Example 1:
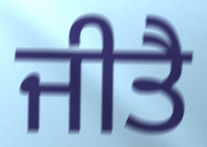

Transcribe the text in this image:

ਜੀਤੈ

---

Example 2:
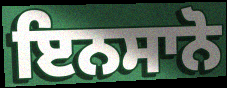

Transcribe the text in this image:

ਇਨਸਾਨੋ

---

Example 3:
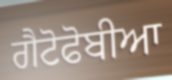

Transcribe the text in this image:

ਗੈਟੋਫੋਬੀਆ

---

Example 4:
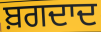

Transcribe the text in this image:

ਬ਼ਗਦਾਦ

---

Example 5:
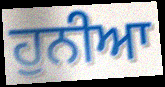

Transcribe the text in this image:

ਹੁਨੀਆ